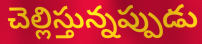
చెల్లిస్తున్నప్పుడు